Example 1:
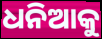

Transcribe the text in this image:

ଧନିଆକୁ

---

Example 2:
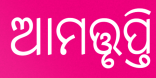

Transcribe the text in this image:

ଆମତ୍ତୃପ୍ତି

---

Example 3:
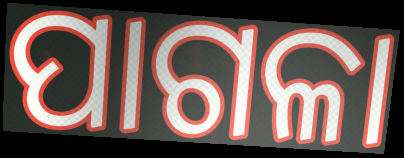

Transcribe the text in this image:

ପାଗଳା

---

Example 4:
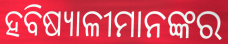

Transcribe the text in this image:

ହବିଷ୍ୟାଳୀମାନଙ୍କର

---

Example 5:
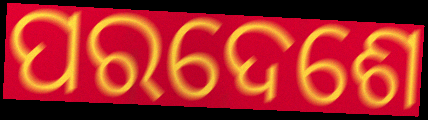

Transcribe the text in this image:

ପରଦେଶେ